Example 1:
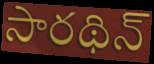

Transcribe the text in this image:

సారథిన్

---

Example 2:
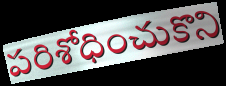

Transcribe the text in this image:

పరిశోధించుకొని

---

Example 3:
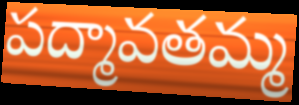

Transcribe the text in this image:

పద్మావతమ్మ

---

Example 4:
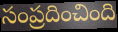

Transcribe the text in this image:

సంప్రదించింది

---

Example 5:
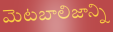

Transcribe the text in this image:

మెటబాలిజాన్ని